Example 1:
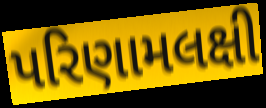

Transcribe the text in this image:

પરિણામલક્ષી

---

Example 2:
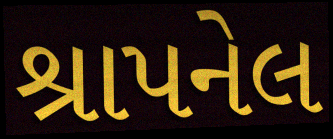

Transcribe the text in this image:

શ્રાપનેલ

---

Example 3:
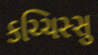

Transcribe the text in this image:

કચ્ચિસ્સુ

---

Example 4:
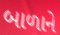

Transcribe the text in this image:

બાળાને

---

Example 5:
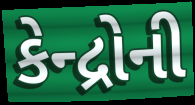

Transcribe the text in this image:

કેન્દ્રોની